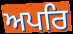
ਅਪਰਿ